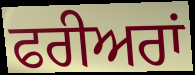
ਫਰੀਅਰਾਂ